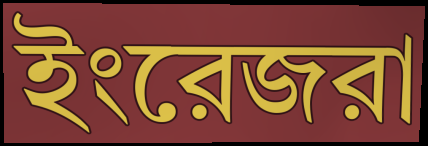
ইংরেজরা